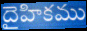
దైహికము